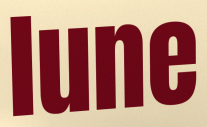
lune